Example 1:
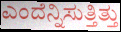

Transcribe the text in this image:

ಎಂದೆನ್ನಿಸುತ್ತಿತ್ತು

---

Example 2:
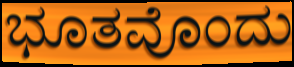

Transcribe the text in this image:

ಭೂತವೊಂದು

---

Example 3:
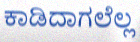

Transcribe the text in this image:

ಕಾಡಿದಾಗಲೆಲ್ಲ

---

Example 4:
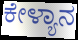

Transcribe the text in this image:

ಕೇಳ್ಯಾನ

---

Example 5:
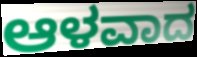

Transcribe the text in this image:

ಆಳವಾದ